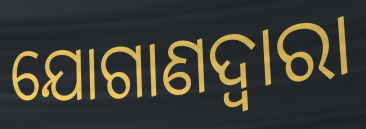
ଯୋଗାଣଦ୍ଵାରା